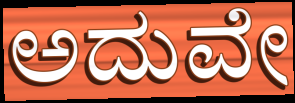
ಅದುವೇ